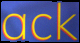
ack